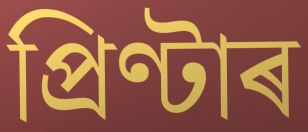
প্ৰিণ্টাৰ